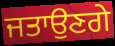
ਜਤਾਉਣਗੇ